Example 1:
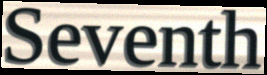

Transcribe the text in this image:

Seventh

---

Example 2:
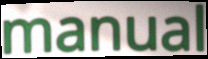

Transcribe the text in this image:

manual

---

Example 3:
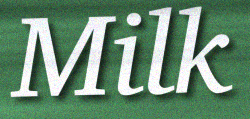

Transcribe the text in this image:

Milk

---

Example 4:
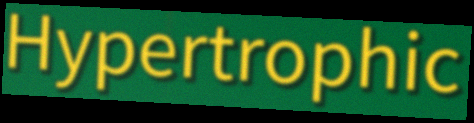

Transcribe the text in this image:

Hypertrophic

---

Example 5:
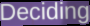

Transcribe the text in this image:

Deciding